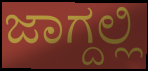
ಜಾಗ್ದಲ್ಲಿ